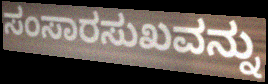
ಸಂಸಾರಸುಖವನ್ನು